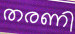
തരണി